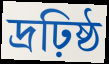
দ্রঢ়িষ্ঠ